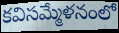
కవిసమ్మేళనంలో